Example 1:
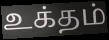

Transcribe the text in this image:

உக்தம்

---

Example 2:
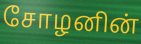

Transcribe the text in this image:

சோழனின்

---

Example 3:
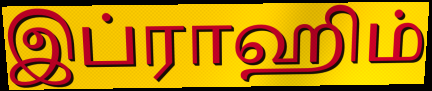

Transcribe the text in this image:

இப்ராஹிம்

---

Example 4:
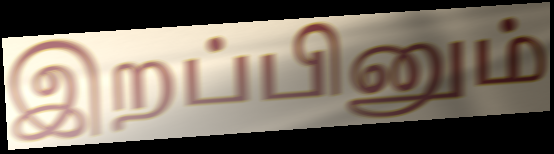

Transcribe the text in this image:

இறப்பினும்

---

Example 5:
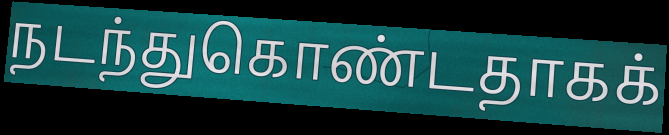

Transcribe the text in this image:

நடந்துகொண்டதாகக்